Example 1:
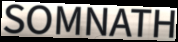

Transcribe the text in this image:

SOMNATH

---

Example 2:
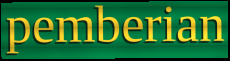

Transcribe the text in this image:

pemberian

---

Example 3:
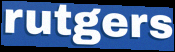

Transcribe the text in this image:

rutgers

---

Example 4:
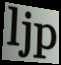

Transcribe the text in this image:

ljp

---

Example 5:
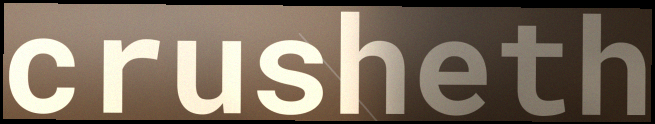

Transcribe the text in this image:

crusheth